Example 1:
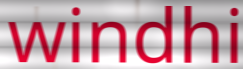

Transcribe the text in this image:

windhi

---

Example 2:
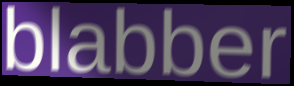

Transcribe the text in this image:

blabber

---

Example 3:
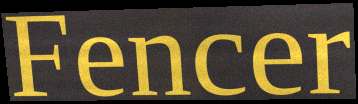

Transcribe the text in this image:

Fencer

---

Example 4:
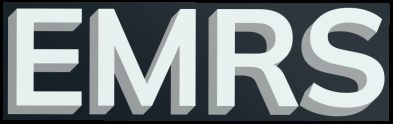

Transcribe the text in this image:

EMRS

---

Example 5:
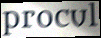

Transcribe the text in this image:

procul